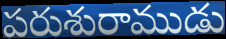
పరుశురాముడు